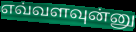
எவ்வளவுன்னு